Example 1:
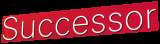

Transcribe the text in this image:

Successor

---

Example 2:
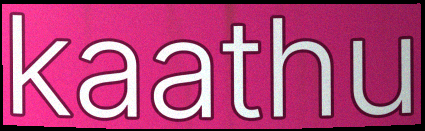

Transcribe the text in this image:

kaathu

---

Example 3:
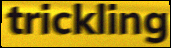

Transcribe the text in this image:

trickling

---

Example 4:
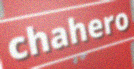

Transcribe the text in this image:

chahero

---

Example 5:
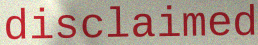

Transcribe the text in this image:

disclaimed